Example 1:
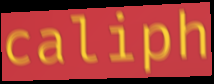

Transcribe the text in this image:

caliph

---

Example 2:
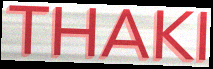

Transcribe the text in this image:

THAKI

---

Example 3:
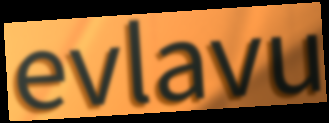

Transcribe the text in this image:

evlavu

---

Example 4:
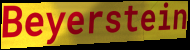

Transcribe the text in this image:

Beyerstein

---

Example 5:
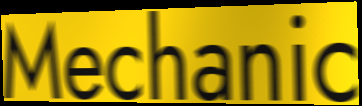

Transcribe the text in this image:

Mechanic